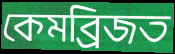
কেমব্ৰিজত